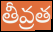
తీవ్రత